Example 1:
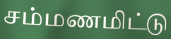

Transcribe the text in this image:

சம்மணமிட்டு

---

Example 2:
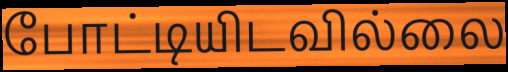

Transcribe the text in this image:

போட்டியிடவில்லை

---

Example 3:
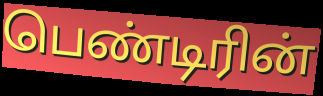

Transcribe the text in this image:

பெண்டிரின்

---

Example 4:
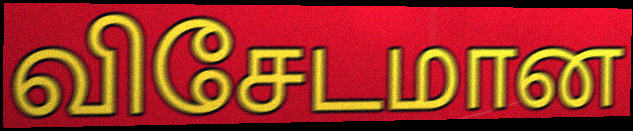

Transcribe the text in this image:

விசேடமான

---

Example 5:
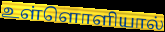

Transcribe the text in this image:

உள்ளொளியால்